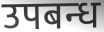
उपबन्ध